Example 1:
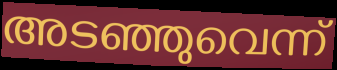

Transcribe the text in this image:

അടഞ്ഞുവെന്ന്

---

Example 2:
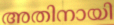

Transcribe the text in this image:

അതിനായി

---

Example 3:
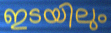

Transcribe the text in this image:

ഇടയിലും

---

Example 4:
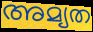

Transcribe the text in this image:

അമ്യത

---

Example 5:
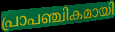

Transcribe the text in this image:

പ്രാപഞ്ചികമായി